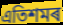
এতিশমৰ